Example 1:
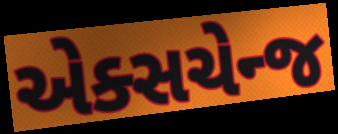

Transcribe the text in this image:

એક્સચેન્જ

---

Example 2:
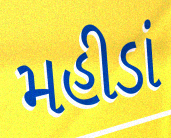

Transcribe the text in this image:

મહીડાં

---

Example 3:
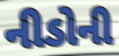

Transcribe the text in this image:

નીડોની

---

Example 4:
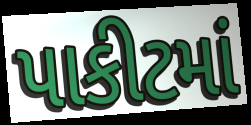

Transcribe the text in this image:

પાકીટમાં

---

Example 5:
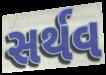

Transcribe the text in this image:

સર્થવ